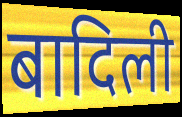
बादिली